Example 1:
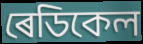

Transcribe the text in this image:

ৰেডিকেল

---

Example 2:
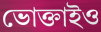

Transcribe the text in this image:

ভোক্তাইও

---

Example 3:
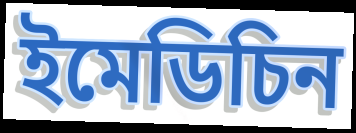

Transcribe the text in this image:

ইমেডিচিন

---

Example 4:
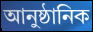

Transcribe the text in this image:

আনুষ্ঠানিক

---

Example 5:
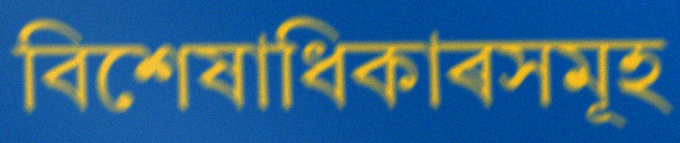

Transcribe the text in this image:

বিশেষাধিকাৰসমূহ